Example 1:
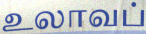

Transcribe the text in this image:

உலாவப்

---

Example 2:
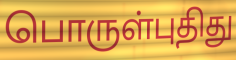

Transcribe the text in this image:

பொருள்புதிது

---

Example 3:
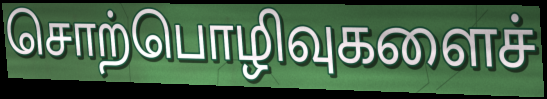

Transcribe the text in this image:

சொற்பொழிவுகளைச்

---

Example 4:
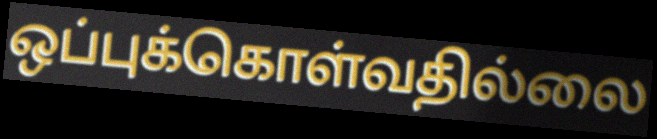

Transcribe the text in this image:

ஒப்புக்கொள்வதில்லை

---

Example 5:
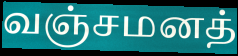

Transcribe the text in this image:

வஞ்சமனத்